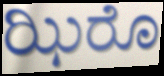
ಝಿರೊ